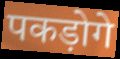
पकड़ोगे